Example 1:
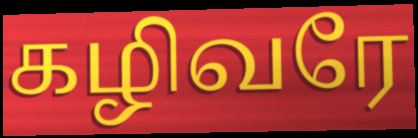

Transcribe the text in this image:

கழிவரே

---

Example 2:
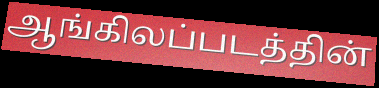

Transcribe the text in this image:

ஆங்கிலப்படத்தின்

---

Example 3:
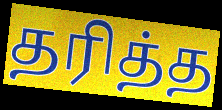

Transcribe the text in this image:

தரித்த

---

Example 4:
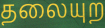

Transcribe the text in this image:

தலையுற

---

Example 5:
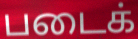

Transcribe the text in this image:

படைக்